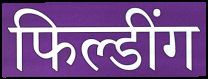
फिल्डींग